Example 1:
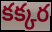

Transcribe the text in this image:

కక్కర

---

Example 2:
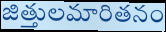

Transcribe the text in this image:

జిత్తులమారితనం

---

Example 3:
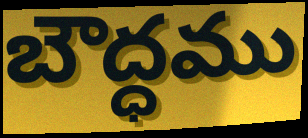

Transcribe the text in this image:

బౌద్ధము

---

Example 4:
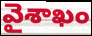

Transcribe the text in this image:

వైశాఖం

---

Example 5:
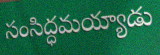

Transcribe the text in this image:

సంసిద్ధమయ్యాడు